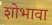
शोभावा